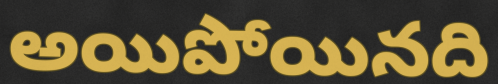
అయిపోయినది